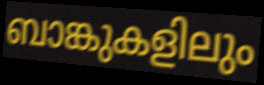
ബാങ്കുകളിലും